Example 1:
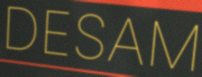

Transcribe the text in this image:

DESAM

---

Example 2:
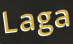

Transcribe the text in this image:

Laga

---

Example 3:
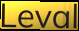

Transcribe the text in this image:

Leval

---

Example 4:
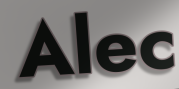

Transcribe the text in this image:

Alec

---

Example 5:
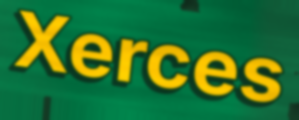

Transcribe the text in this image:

Xerces